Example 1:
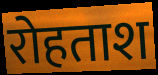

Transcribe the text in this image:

रोहताश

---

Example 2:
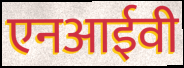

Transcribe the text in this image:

एनआईवी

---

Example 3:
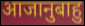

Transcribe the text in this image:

आजानुबाहु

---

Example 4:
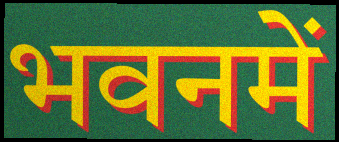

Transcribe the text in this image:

भवनमें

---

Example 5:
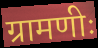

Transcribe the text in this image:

ग्रामणीः